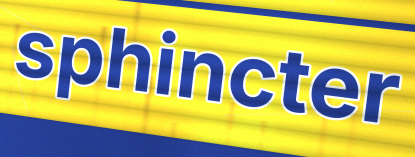
sphincter